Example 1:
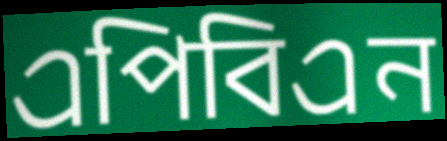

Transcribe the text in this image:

এপিবিএন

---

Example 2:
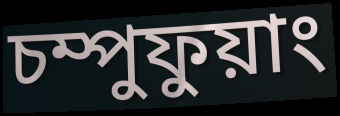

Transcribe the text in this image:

চম্পুফুয়াং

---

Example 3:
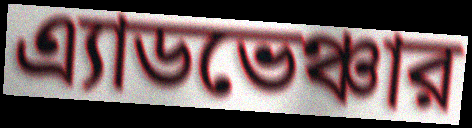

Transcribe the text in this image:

এ্যাডভেঞ্চার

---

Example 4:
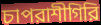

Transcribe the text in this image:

চাপরাশীগিরি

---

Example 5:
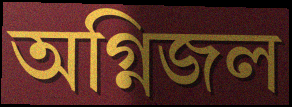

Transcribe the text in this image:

অগ্নিজল